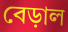
বেড়াল